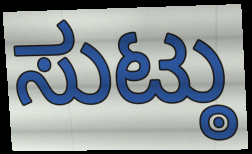
ಸುಟ್ಠು